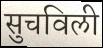
सुचविली